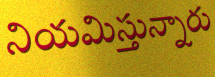
నియమిస్తున్నారు